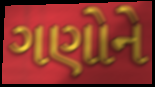
ગણોને